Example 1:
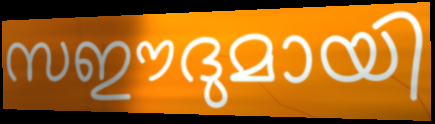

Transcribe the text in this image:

സഈദുമായി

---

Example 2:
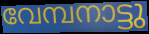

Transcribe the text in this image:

വേമ്പനാട്ടു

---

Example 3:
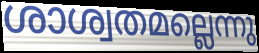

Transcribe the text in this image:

ശാശ്വതമല്ലെന്നു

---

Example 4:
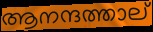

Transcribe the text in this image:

ആനന്ദത്താല്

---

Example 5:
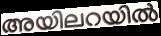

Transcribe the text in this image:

അയിലറയിൽ